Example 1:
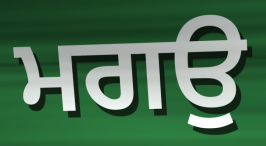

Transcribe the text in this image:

ਮਗਉ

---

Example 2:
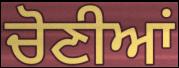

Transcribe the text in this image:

ਚੋਣੀਆਂ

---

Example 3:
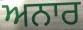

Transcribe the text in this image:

ਅਨਾਰ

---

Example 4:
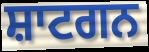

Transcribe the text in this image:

ਸ਼ਾਟਗਨ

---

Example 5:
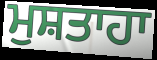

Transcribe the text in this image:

ਮੁਸ਼ਤਾਹਾ